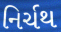
નિર્ચથ